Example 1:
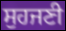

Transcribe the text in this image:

ਸੁਹਜਣੀ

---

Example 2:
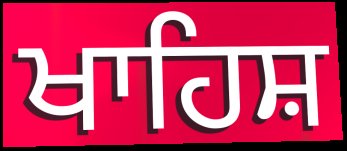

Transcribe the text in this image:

ਖਾਹਿਸ਼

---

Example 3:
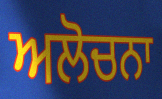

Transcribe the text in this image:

ਅਲੋਚਨਾ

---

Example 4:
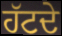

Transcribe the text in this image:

ਹੱਟਦੇ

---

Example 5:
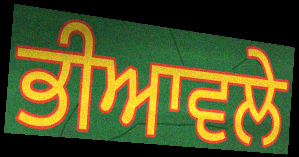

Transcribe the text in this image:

ਭੀਆਵਲੇ